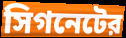
সিগনেটের